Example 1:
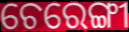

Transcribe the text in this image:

ଚେରେଙ୍ଗୀ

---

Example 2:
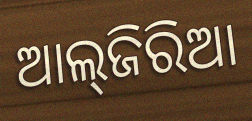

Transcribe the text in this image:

ଆଲ୍‌ଜିରିଆ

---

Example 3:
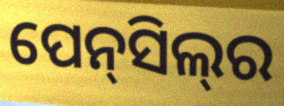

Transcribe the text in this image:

ପେନ୍‍ସିଲ୍‍ର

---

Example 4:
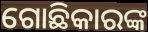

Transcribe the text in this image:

ଗୋଛିକାରଙ୍କ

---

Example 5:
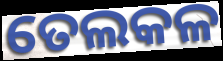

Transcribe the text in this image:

ତେଲକଳ